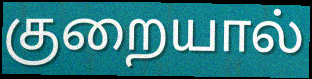
குறையால்